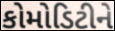
કોમોડિટીને